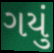
ગયું